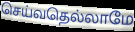
செய்வதெல்லாமே